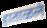
हाताळले